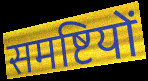
समष्टियों